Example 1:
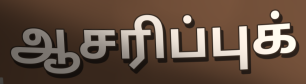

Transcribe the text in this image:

ஆசரிப்புக்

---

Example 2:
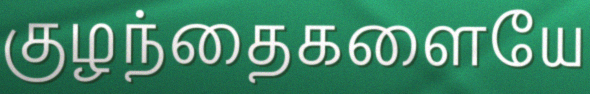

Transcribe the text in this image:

குழந்தைகளையே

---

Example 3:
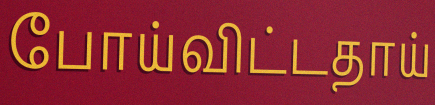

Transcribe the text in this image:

போய்விட்டதாய்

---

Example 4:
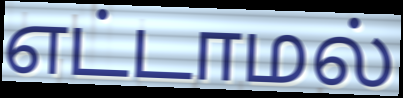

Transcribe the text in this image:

எட்டாமல்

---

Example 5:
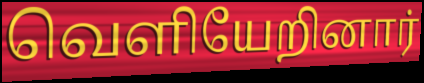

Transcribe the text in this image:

வெளியேறினார்